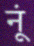
नूं